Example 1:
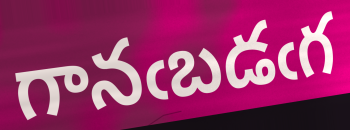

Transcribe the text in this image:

గానఁబడఁగ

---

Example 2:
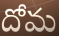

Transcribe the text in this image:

దోమ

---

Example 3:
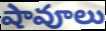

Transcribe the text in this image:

షావూలు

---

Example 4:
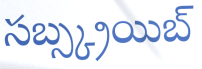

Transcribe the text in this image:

సబ్స్క్రయిబ్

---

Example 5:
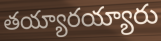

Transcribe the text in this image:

తయ్యారయ్యారు